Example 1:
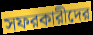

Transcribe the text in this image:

সফরকারীদের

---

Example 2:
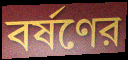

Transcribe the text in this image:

বর্ষণের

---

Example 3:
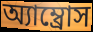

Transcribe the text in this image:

অ্যাম্ব্রোস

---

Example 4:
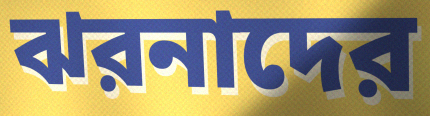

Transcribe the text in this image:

ঝরনাদের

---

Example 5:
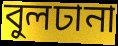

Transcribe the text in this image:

বুলঢানা